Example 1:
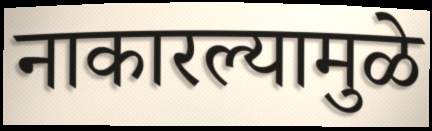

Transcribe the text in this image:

नाकारल्यामुळे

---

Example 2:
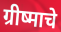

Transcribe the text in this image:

ग्रीष्माचे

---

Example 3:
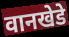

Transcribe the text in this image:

वानखेडे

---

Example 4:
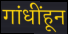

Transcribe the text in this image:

गांधींहून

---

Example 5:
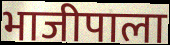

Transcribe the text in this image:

भाजीपाला